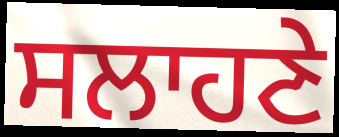
ਸਲਾਹਣੇ